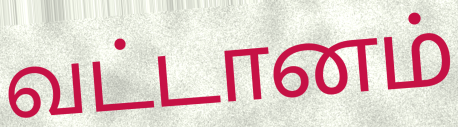
வட்டானம்